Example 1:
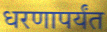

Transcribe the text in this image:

धरणापर्यंत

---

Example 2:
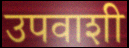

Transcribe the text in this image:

उपवाशी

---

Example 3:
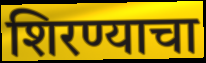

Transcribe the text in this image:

शिरण्याचा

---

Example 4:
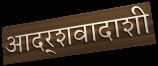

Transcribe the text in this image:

आदर्शवादाशी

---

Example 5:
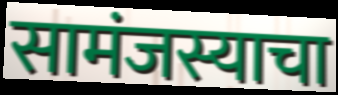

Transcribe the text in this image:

सामंजस्याचा